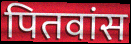
पितवांस